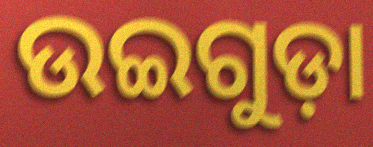
ଉଇଗୁଡ଼ା